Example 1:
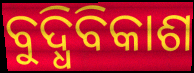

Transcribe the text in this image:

ବୁଦ୍ଧିବିକାଶ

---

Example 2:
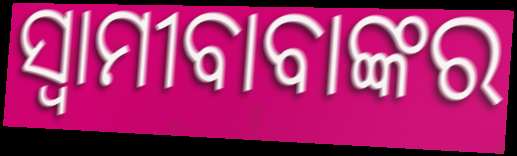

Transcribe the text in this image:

ସ୍ଵାମୀବାବାଙ୍କର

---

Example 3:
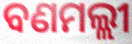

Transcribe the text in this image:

ବଣମଲ୍ଲୀ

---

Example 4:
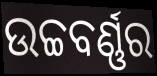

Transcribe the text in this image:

ଉଚ୍ଚବର୍ଣ୍ଣର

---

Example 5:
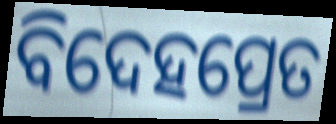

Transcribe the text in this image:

ବିଦେହପ୍ରେତ